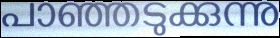
പാഞ്ഞടുക്കുന്നു